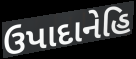
ઉપાદાનેહિ